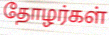
தோழர்கள்